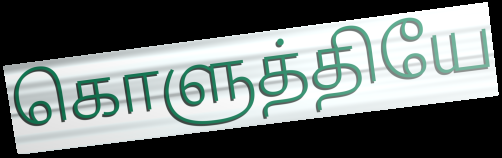
கொளுத்தியே